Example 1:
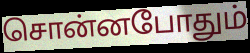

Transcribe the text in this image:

சொன்னபோதும்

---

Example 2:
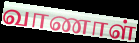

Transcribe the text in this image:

வாணாள்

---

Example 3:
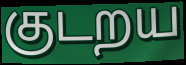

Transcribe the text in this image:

குடறய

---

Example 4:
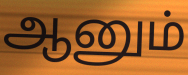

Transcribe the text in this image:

ஆனும்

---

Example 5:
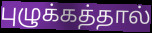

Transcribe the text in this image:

புழுக்கத்தால்